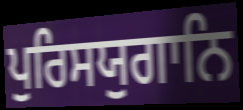
ਪੁਰਿਸਯੁਗਾਨਿ